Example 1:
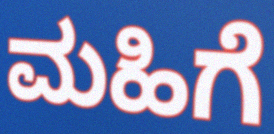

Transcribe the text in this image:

ಮಹಿಗೆ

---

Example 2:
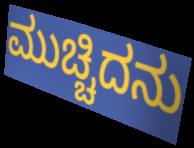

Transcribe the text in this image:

ಮುಚ್ಚಿದನು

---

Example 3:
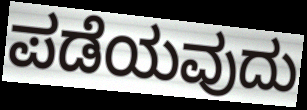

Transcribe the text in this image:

ಪಡೆಯವುದು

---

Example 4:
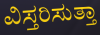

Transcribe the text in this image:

ವಿಸ್ತರಿಸುತ್ತಾ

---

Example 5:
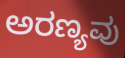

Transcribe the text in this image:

ಅರಣ್ಯವು